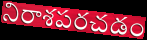
నిరాశపరచడం